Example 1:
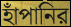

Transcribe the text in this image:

হাঁপানির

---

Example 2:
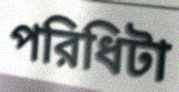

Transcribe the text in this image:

পরিধিটা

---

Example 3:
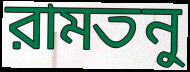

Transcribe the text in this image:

রামতনু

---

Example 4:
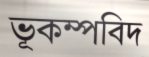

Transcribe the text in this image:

ভূকম্পবিদ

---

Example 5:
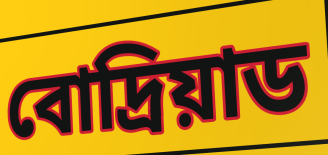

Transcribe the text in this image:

বোদ্রিয়াড